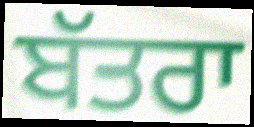
ਬੱਤਰਾ